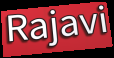
Rajavi